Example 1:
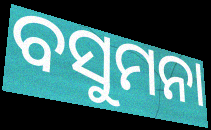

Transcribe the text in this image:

ବସୁମନା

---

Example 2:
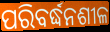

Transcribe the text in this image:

ପରିବର୍ଦ୍ଧନଶୀଳ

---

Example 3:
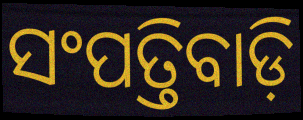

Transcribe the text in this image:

ସଂପତ୍ତିବାଡ଼ି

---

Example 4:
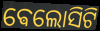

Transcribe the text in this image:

ଵେଲୋସିଟି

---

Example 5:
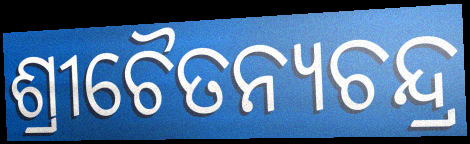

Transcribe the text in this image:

ଶ୍ରୀଚୈତନ୍ୟଚନ୍ଦ୍ର